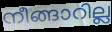
നീങ്ങാറില്ല